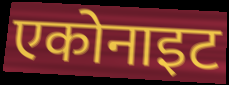
एकोनाइट